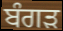
ਬੰਗੜ